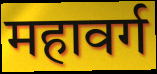
महावर्ग